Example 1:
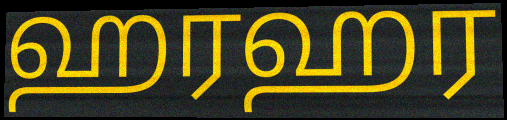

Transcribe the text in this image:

ஹரஹர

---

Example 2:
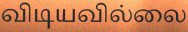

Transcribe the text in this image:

விடியவில்லை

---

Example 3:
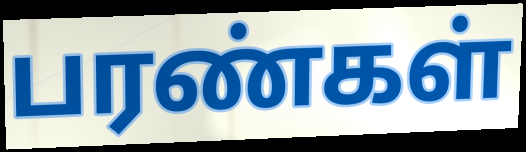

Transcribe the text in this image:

பரண்கள்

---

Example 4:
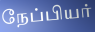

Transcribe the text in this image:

நேப்பியர்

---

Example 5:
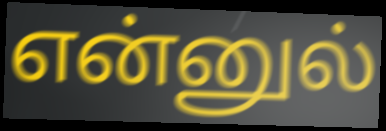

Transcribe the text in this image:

என்னுல்